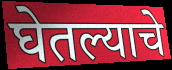
घेतल्याचे